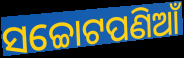
ସଚ୍ଚୋଟପଣିଆଁ